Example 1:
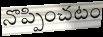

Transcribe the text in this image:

నొప్పించటం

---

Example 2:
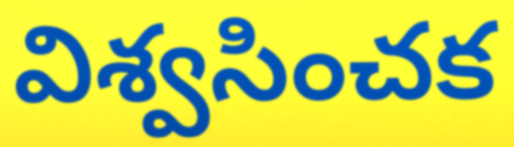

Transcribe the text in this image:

విశ్వసించక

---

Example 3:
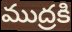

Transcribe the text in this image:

ముద్రకి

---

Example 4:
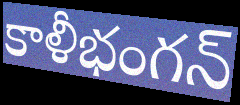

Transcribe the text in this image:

కాళీభంగన్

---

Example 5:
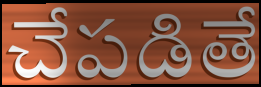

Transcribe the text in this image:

చేపడితే